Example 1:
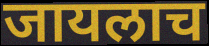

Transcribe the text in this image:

जायलाच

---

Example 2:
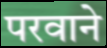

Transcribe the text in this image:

परवाने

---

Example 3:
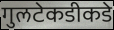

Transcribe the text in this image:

गुलटेकडीकडे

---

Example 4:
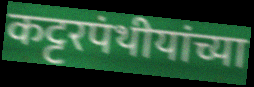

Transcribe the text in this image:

कट्टरपंथीयांच्या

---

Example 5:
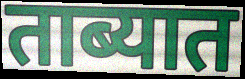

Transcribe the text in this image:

ताब्यात